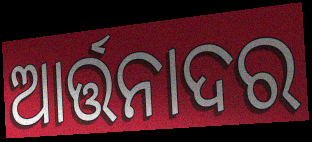
ଆର୍ତ୍ତନାଦର